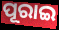
ପୂରାଇ